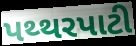
પથ્થરપાટી